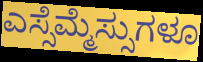
ಎಸ್ಸೆಮ್ಮೆಸ್ಸುಗಳೂ